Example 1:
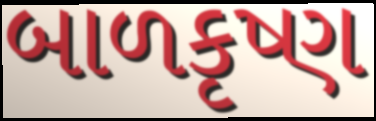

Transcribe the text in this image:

બાળકૃષ્ણ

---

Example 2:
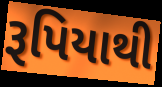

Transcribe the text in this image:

રૂપિયાથી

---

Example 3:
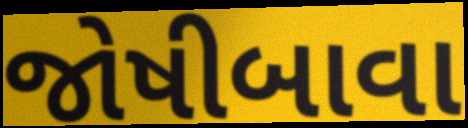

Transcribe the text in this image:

જોષીબાવા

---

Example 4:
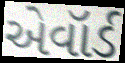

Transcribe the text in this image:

એવૉર્ડ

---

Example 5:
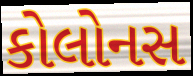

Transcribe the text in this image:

કોલોનસ